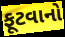
ફૂટવાનો